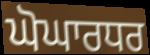
ਘੋਘਾਰਧਰ